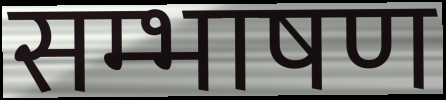
सम्भाषण